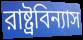
রাষ্ট্রবিন্যাস